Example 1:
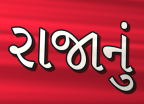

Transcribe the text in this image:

રાજાનું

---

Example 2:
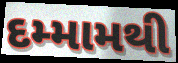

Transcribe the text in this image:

દમ્મામથી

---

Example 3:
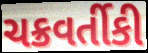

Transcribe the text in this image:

ચક્રવર્તીકી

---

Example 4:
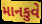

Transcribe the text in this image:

માનકુવે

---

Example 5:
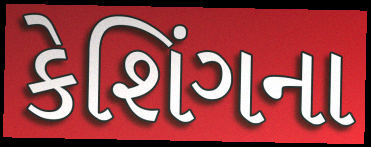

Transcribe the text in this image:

કેશિંગના